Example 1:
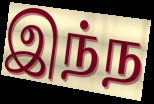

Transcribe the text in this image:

இந்ந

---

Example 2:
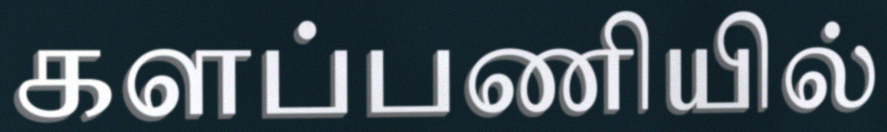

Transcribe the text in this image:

களப்பணியில்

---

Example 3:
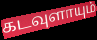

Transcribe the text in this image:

கடவுளாயும்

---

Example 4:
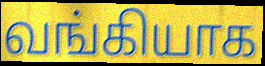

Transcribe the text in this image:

வங்கியாக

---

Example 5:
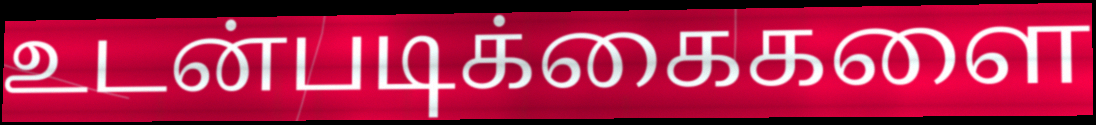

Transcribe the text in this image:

உடன்படிக்கைகளை